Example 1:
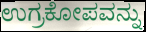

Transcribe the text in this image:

ಉಗ್ರಕೋಪವನ್ನು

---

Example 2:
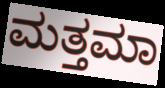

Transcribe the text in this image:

ಮತ್ತಮಾ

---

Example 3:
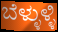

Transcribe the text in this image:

ಬೆಳ್ಳುಳ್ಳಿ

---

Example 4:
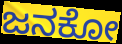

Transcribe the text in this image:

ಜನಕೋ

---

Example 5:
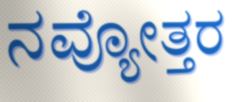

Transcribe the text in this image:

ನವ್ಯೋತ್ತರ